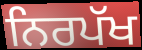
ਨਿਰਪੱਖ